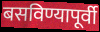
बसविण्यापूर्वी